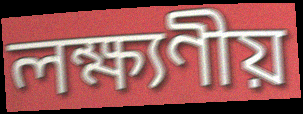
লক্ষ্যণীয়